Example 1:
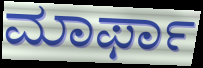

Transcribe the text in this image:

ಮಾರ್ಫಾ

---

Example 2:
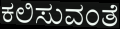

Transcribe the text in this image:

ಕಲಿಸುವಂತೆ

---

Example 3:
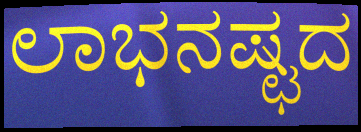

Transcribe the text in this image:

ಲಾಭನಷ್ಟದ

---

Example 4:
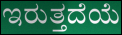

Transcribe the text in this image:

ಇರುತ್ತದೆಯೆ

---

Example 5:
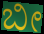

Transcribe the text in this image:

ಬೀ